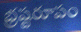
భ్రష్టరూపం